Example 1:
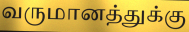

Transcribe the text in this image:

வருமானத்துக்கு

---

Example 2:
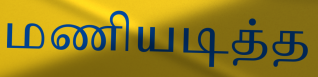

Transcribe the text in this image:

மணியடித்த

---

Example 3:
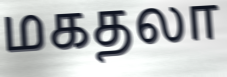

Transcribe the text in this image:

மகதலா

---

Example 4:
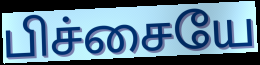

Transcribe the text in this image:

பிச்சையே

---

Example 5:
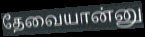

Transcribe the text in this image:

தேவையான்னு